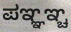
ಪಞ್ಞಞ್ಚ